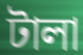
টালা